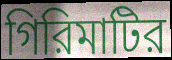
গিরিমাটির